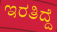
ಇರತಿದ್ದೆ